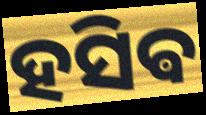
ହସିଵ